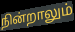
நின்றாலும்